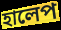
হালেপ